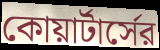
কোয়ার্টার্সের